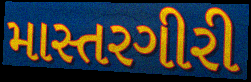
માસ્તરગીરી